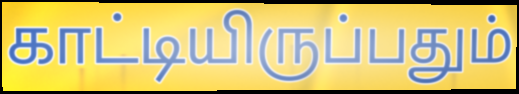
காட்டியிருப்பதும்